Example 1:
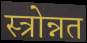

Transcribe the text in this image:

स्त्रोन्नत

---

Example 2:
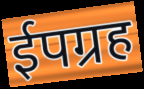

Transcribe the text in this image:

ईपग्रह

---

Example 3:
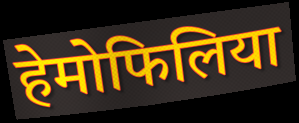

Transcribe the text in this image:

हेमोफिलिया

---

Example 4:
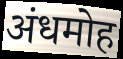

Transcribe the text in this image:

अंधमोह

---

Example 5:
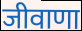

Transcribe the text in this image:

जीवाणा